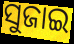
ସୁଜାଇ